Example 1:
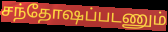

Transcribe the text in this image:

சந்தோஷப்படணும்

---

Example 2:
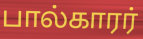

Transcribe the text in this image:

பால்காரர்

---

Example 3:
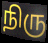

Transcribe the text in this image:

நிரு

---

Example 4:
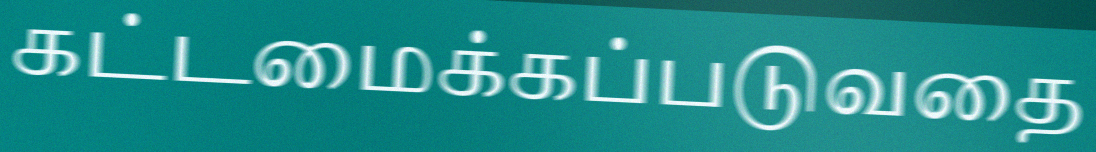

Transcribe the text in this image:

கட்டமைக்கப்படுவதை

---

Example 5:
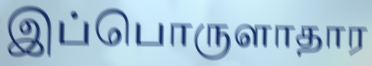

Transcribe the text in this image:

இப்பொருளாதார